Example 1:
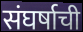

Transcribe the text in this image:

संघर्षाची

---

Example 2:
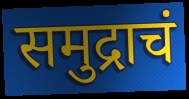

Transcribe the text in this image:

समुद्राचं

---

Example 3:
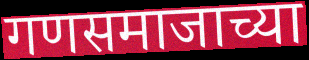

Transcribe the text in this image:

गणसमाजाच्या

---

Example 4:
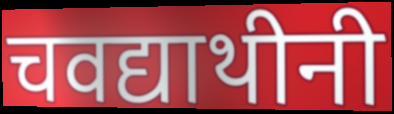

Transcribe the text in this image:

चवद्याथीनी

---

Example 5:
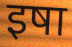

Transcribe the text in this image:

इषा